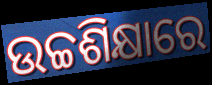
ଉଚ୍ଚଶିକ୍ଷାରେ